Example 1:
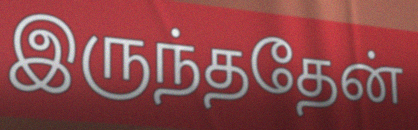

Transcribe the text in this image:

இருந்ததேன்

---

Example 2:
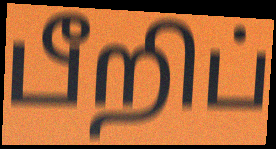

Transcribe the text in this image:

பீறிப்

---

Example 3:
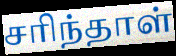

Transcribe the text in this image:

சரிந்தாள்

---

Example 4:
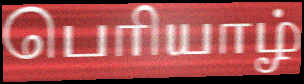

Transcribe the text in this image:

பெரியாழ்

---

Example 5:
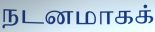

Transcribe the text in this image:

நடனமாகக்